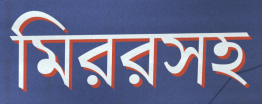
মিররসহ